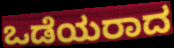
ಒಡೆಯರಾದ